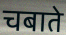
चबाते